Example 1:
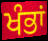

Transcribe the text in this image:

ਖੰਭਾਂ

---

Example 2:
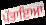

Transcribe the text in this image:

ਪੱਤਾਇਆ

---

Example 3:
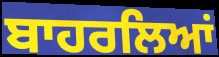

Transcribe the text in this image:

ਬਾਹਰਲਿਆਂ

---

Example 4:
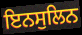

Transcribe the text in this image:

ਇਨਸੁਲਿਨ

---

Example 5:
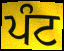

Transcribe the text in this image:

ਪੰਟ